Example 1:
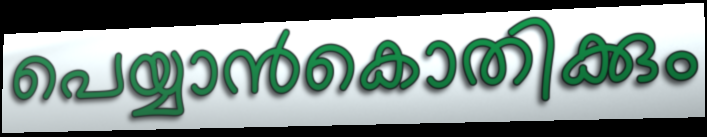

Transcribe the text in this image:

പെയ്യാൻകൊതിക്കും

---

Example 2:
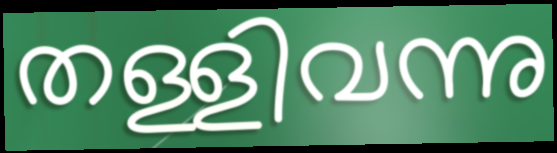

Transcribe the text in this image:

തള്ളിവന്നു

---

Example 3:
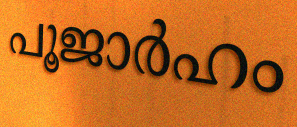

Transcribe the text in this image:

പൂജാർഹം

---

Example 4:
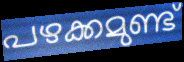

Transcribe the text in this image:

പഴക്കമുണ്ട്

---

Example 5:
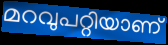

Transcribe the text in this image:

മറവുപറ്റിയാണ്